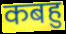
कबहु